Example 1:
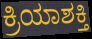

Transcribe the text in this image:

ಕ್ರಿಯಾಶಕ್ತಿ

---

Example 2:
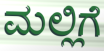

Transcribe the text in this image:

ಮಲ್ಲಿಗೆ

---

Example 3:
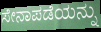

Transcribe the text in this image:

ಸೇನಾಪಡೆಯನ್ನು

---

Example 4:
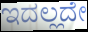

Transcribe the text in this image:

ಇದಲ್ಲದೇ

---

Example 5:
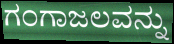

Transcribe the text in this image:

ಗಂಗಾಜಲವನ್ನು